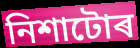
নিশাটোৰ